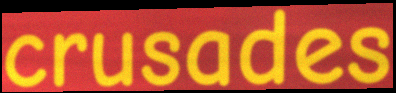
crusades